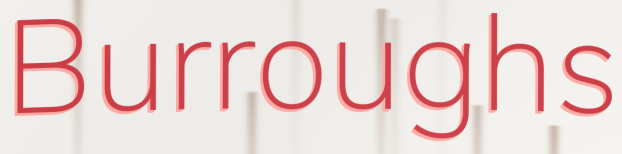
Burroughs